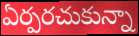
ఏర్పరచుకున్నా